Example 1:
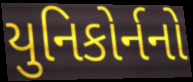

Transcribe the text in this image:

યુનિકોર્નનો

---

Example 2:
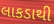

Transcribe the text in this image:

લાકડાથી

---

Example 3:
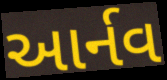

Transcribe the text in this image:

આર્નવ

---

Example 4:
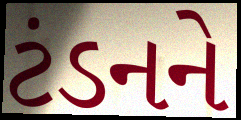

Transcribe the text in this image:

ટંડનને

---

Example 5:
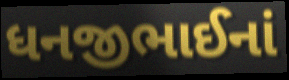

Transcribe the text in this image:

ધનજીભાઈનાં